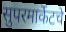
सुपरमार्केटचे